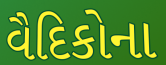
વૈદિકોના